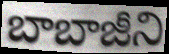
బాబాజీని